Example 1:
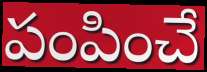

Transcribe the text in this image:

పంపించే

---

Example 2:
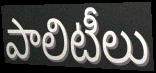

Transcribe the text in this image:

పాలిటీలు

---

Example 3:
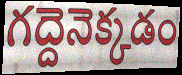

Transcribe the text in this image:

గద్దెనెక్కడం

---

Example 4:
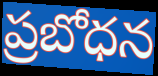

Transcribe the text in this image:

ప్రబోధన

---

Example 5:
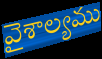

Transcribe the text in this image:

వైశాల్యము